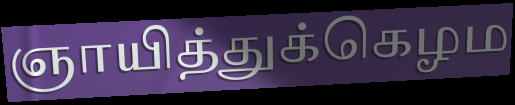
ஞாயித்துக்கெழம